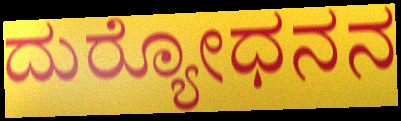
ದುರ‍್ಯೋಧನನ